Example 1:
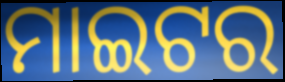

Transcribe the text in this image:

ମାଇଟର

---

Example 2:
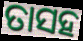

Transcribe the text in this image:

ତାସହ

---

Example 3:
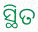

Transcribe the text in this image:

ସ୍ଥିତ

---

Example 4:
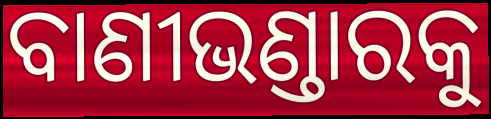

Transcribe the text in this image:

ବାଣୀଭଣ୍ଡାରକୁ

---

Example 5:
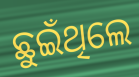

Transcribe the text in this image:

ଛୁଇଁଥିଲେ